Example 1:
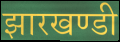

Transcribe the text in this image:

झारखण्डी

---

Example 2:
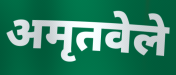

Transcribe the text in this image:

अमृतवेले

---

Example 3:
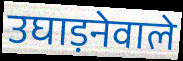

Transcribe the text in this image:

उघाड़नेवाले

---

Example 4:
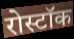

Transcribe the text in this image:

रोस्टॉक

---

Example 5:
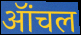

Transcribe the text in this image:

ऑंचल